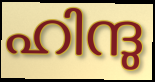
ഹിന്ദു